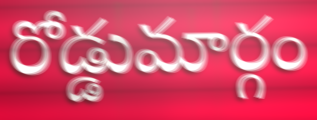
రోడ్డుమార్గం